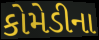
કોમેડીના